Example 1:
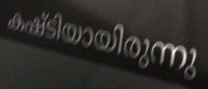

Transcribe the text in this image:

കഷ്ടിയായിരുന്നു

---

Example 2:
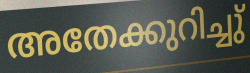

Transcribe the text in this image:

അതേക്കുറിച്ചു്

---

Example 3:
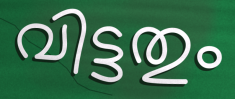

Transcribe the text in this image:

വിട്ടതും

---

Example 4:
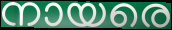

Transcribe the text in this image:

നായരെ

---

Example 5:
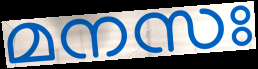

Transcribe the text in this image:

മനസഃ